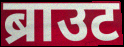
ब्राउट